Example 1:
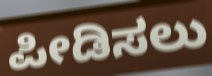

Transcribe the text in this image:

ಪೀಡಿಸಲು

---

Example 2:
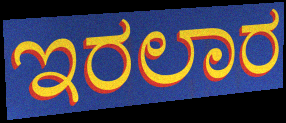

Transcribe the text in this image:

ಇರಲಾರ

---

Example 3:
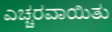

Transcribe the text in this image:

ಎಚ್ಚರವಾಯಿತು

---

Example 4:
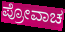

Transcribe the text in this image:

ಪ್ರೋವಾಚ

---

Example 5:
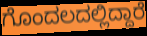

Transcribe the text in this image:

ಗೊಂದಲದಲ್ಲಿದ್ದಾರೆ